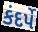
કંદર્પે